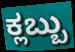
ಕ್ಲಬ್ಬು